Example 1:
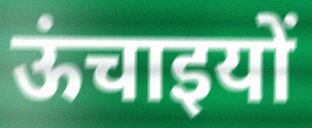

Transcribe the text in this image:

ऊंचाइयों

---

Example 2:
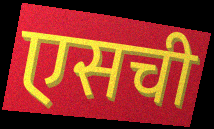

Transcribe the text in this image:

एसची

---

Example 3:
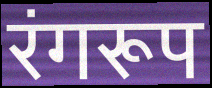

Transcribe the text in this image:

रंगरूप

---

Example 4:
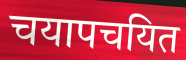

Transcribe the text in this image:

चयापचयित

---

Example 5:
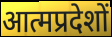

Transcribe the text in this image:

आत्मप्रदेशों